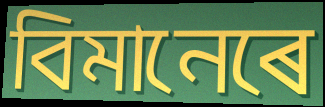
বিমানেৰে